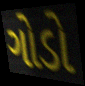
ગોડો